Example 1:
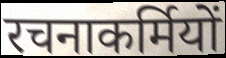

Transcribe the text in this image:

रचनाकर्मियों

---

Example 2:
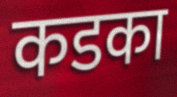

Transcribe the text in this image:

कडका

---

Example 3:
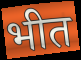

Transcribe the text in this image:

भीत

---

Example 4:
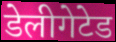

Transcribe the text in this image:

डेलीगेटेड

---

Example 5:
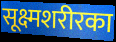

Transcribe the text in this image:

सूक्ष्मशरीरका